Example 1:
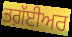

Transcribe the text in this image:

ਤਗ਼ੱਈਅਰ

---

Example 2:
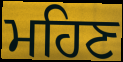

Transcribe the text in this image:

ਮਹਿਣ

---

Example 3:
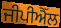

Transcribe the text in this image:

ਜੀਪੀਐੱਲ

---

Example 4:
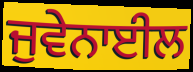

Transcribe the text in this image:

ਜੁਵੇਨਾਈਲ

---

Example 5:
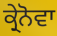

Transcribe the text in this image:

ਕ੍ਰੇਨੋਵਾ